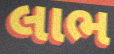
લાભ